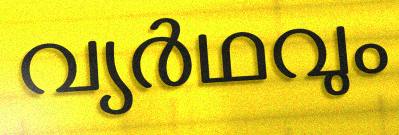
വ്യർഥവും